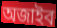
অজাইব